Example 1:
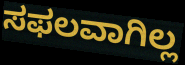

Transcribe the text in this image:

ಸಫಲವಾಗಿಲ್ಲ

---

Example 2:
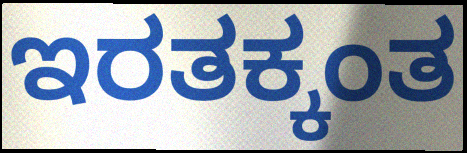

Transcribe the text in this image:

ಇರತಕ್ಕಂತ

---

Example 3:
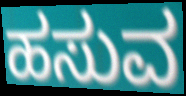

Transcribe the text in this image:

ಹಸುವ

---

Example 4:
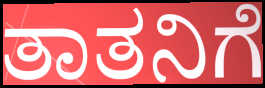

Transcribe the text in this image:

ತಾತನಿಗೆ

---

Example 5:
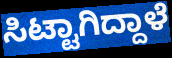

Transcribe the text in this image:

ಸಿಟ್ಟಾಗಿದ್ದಾಳೆ